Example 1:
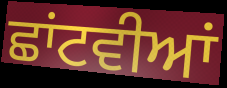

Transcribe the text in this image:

ਛਾਂਟਵੀਆਂ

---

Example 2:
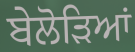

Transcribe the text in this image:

ਬੇਲੋੜਿਆਂ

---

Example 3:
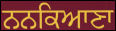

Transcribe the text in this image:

ਨਨਕਿਆਣਾ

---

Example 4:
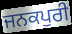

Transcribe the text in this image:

ਜਨਕਪੁਰੀ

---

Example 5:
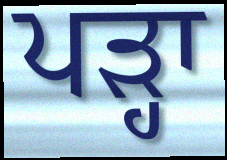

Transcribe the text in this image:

ਪੜ੍ਹਾ